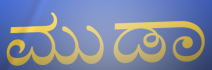
ಮುಡಾ